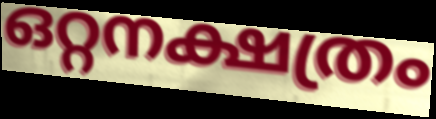
ഒറ്റനക്ഷത്രം